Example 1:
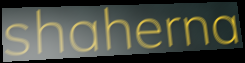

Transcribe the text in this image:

shaherna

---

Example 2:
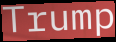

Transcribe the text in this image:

Trump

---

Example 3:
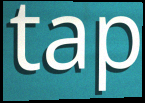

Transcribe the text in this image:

tap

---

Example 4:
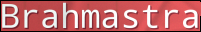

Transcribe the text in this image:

Brahmastra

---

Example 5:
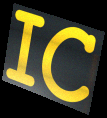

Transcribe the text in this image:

IC